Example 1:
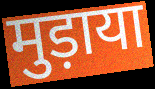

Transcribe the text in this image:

मुड़ाया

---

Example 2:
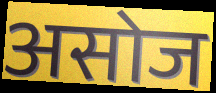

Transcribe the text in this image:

असोज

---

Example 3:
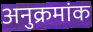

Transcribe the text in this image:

अनुक्रमांक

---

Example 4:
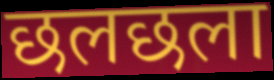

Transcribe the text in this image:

छलछला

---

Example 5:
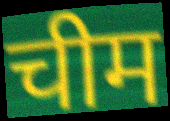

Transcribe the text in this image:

चीम